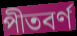
পীতবর্ণ